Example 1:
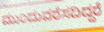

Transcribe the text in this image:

ಮುಂದುವರೆಸದಿದ್ದರೆ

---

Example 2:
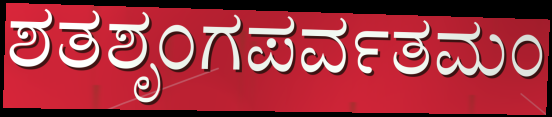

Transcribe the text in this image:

ಶತಶೃಂಗಪರ್ವತಮಂ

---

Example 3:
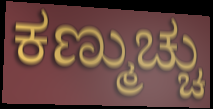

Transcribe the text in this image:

ಕಣ್ಮುಚ್ಚು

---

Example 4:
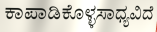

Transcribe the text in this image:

ಕಾಪಾಡಿಕೊಳ್ಳಸಾಧ್ಯವಿದೆ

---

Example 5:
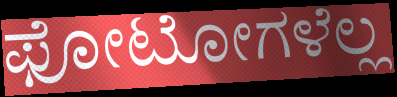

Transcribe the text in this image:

ಫೋಟೋಗಳೆಲ್ಲ